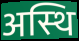
अस्थि